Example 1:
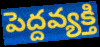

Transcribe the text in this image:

పెద్దవ్యక్తి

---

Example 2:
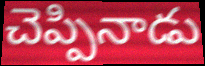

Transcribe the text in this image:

చెప్పినాడు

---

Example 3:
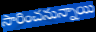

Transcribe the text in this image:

సారించనున్నాయి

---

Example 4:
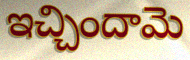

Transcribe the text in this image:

ఇచ్చిందామె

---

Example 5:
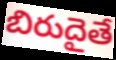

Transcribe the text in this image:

బిరుదైతే